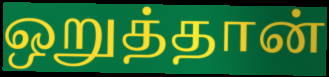
ஒறுத்தான்